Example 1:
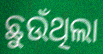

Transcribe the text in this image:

ଛୁଉଁଥିଲା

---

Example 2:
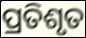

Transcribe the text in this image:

ପ୍ରତିଶୃତ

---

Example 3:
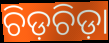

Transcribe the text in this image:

ଚିଡ଼ଚିଡ଼ା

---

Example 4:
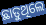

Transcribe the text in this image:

ଛାଡୁଥିଲେ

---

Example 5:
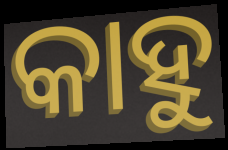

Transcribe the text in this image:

କାହୁ